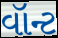
વૉન્ટ